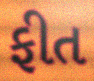
ફીત